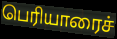
பெரியாரைச்